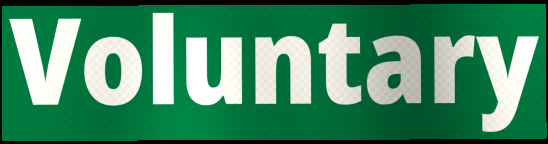
Voluntary